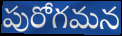
పురోగమన